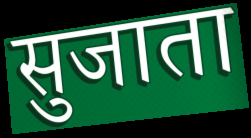
सुजाता